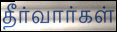
தீர்வார்கள்